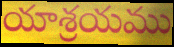
యాశ్రయము